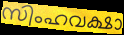
സിംഹവക്ഷാ